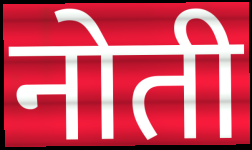
नोती